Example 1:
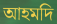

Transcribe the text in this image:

আহমদি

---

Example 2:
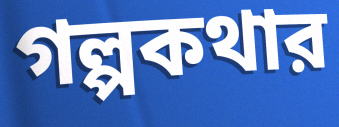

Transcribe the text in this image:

গল্পকথার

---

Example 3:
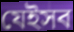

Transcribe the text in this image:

যেইসব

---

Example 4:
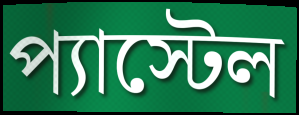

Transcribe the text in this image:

প্যাস্টেল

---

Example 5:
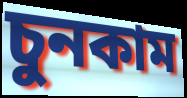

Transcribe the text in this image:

চুনকাম